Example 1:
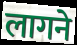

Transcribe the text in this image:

लागने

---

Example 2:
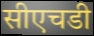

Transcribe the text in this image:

सीएचडी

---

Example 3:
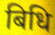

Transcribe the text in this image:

बिधि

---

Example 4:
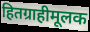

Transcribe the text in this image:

हितग्राहीमूलक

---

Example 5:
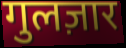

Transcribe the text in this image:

गुलज़ार